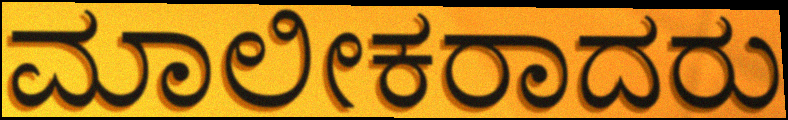
ಮಾಲೀಕರಾದರು